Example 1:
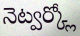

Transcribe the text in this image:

నెట్వర్క్లో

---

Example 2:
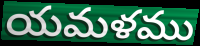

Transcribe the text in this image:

యమళము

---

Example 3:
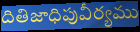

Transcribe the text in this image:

దితిజాధిపువీర్యము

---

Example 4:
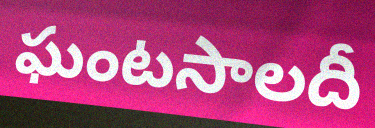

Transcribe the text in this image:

ఘంటసాలదీ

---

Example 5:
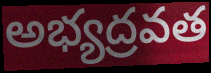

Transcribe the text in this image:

అభ్యద్రవత